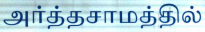
அர்த்தசாமத்தில்